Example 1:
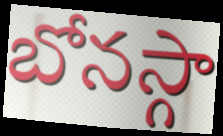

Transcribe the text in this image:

బోనస్గా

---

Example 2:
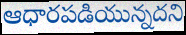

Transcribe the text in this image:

ఆధారపడియున్నదని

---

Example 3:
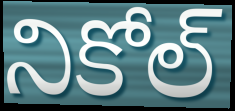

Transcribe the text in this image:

నికోల్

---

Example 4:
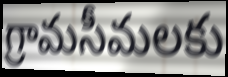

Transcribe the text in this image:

గ్రామసీమలకు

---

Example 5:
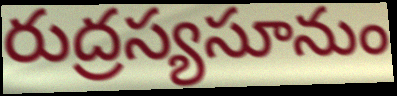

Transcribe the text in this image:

రుద్రస్యసూనుం